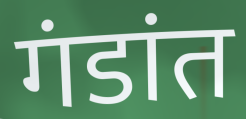
गंडांत